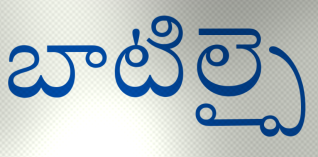
బాటిల్పై